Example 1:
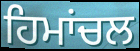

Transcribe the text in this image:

ਹਿਮਾਂਚਲ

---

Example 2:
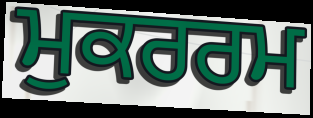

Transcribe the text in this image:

ਮੁਕਰਰਮ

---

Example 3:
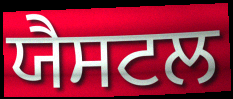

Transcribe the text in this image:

ਯੈਸਟਲ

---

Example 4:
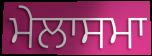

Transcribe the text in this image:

ਮੇਲਾਸਮਾ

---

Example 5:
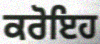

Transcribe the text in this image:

ਕਰੋਇਹ